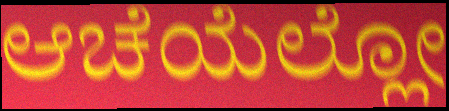
ಆಚೆಯೆಲ್ಲೋ